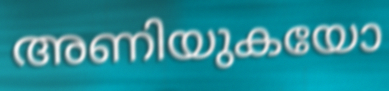
അണിയുകയോ